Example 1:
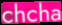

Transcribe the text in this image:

chcha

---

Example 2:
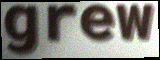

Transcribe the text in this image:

grew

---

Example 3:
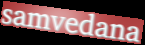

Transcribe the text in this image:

samvedana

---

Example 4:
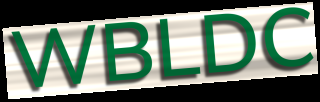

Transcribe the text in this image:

WBLDC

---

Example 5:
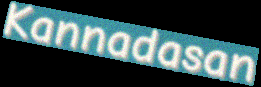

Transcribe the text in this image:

Kannadasan